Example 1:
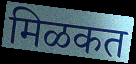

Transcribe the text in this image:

मिळकत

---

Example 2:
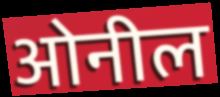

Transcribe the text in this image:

ओनील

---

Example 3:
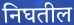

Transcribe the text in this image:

निघतील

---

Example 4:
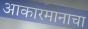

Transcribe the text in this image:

आकारमानाचा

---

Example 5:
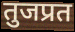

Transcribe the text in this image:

तुजप्रत